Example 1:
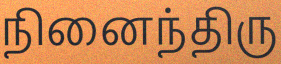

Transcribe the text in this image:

நினைந்திரு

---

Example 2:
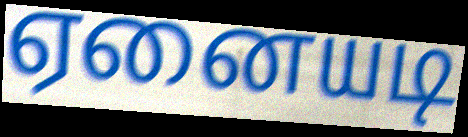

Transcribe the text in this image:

ஏனையடி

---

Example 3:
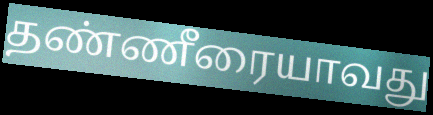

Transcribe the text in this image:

தண்ணீரையாவது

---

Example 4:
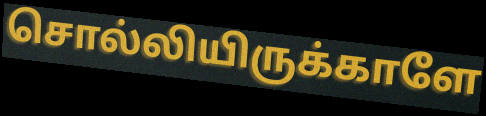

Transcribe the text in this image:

சொல்லியிருக்காளே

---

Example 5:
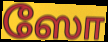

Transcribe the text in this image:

ஸோ